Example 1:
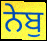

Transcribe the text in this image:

ਨੇਬੁ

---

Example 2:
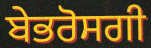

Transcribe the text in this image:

ਬੇਭਰੋਸਗੀ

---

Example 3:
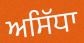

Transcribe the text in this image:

ਅਸਿੱਧਾ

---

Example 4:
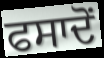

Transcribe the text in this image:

ਫਸਾਦੋਂ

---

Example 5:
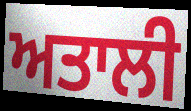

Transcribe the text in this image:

ਅਤਾਲੀ